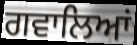
ਗਵਾਲਿਆਂ